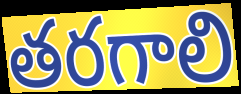
తరగాలి